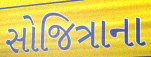
સોજિત્રાના